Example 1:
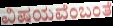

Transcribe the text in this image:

ವಿಷಯವೆಂಬಂತೆ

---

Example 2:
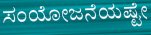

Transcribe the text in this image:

ಸಂಯೋಜನೆಯಷ್ಟೇ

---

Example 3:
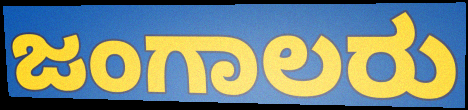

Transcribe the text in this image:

ಜಂಗಾಲರು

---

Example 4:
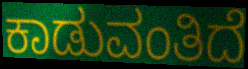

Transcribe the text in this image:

ಕಾಡುವಂತಿದೆ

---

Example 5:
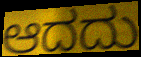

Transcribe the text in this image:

ಆದದು